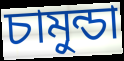
চামুন্ডা